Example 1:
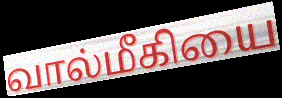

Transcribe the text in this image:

வால்மீகியை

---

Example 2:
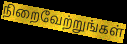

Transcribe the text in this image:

நிறைவேற்றுங்கள்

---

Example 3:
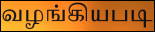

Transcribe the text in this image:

வழங்கியபடி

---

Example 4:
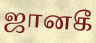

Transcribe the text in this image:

ஜானகீ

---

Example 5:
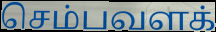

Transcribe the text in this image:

செம்பவளக்